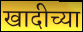
खादीच्या